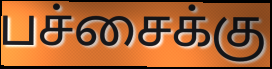
பச்சைக்கு